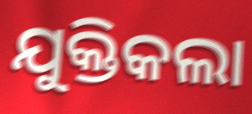
ଯୁକ୍ତିକଲା